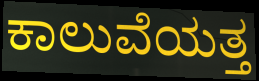
ಕಾಲುವೆಯತ್ತ